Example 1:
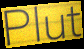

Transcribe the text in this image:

Plut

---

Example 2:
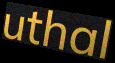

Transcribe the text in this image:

uthal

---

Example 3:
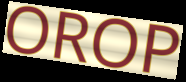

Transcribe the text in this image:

OROP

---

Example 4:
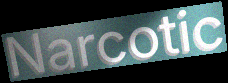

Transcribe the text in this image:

Narcotic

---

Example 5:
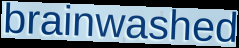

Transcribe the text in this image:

brainwashed